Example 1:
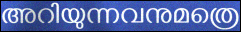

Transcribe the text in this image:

അറിയുന്നവനുമത്രെ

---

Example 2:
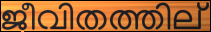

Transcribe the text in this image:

ജീവിതത്തില്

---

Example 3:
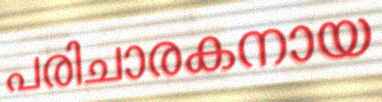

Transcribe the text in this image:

പരിചാരകനായ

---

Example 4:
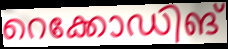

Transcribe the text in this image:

റെക്കോഡിങ്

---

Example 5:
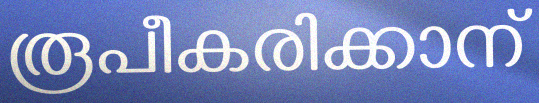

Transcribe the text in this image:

രൂപീകരിക്കാന്